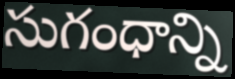
సుగంధాన్ని